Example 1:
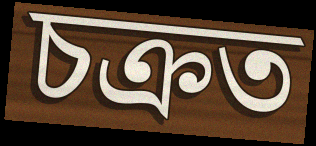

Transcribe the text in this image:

চক্ৰত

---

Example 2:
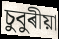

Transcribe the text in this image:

চুবুৰীয়া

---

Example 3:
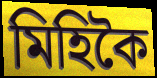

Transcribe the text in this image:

মিহিকৈ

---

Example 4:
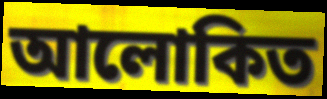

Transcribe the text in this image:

আলোকিত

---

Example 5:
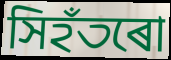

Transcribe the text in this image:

সিহঁতৰো